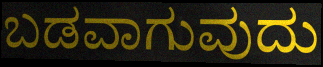
ಬಡವಾಗುವುದು